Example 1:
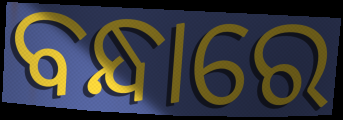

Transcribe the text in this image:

ବନ୍ଧାରେ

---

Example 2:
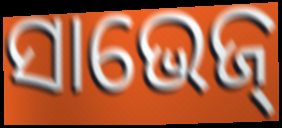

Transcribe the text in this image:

ସାଭେଜ୍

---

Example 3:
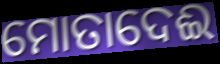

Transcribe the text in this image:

ମୋତାଦେଈ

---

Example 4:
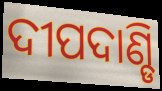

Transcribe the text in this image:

ଦୀପଦାଣ୍ଡି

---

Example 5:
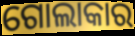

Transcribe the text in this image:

ଗୋଲାକାର